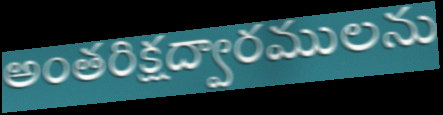
అంతరిక్షద్వారములను